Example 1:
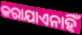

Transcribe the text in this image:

କରାଯାଏନାହିଁ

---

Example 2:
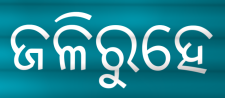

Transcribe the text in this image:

ଜଳିରୁହେ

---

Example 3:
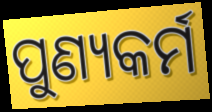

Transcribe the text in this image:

ପୁଣ୍ୟକର୍ମ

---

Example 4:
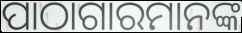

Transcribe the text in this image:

ପାଠାଗାରମାନଙ୍କ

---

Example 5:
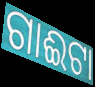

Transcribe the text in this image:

ଗାଈଟା